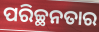
ପରିଚ୍ଛନତାର